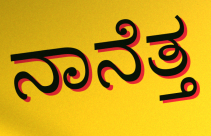
ನಾನೆತ್ತ